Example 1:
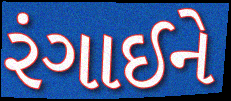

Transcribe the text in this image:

રંગાઈને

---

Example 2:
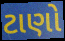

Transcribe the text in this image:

ટાણો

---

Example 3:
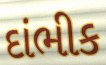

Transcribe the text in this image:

દાંભીક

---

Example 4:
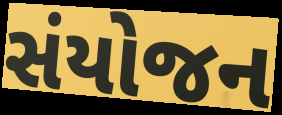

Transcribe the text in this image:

સંયોજન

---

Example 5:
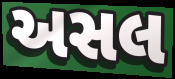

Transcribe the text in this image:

અસલ